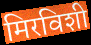
मिरविशी